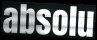
absolu